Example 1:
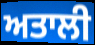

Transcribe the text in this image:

ਅਤਾਲੀ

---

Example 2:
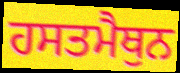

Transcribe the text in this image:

ਹਸਤਮੈਥੁਨ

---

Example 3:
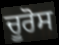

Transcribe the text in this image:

ਚੂਰੋਸ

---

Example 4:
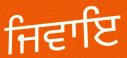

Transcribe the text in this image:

ਜਿਵਾਇ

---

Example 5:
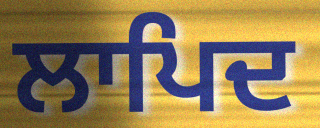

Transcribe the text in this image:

ਲਾਪਿਦ